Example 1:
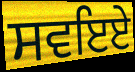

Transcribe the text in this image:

ਸਵਇਏ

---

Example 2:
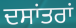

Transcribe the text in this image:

ਦਸਾਂਤਰਾਂ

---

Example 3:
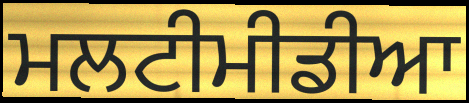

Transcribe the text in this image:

ਮਲਟੀਮੀਡੀਆ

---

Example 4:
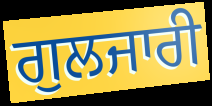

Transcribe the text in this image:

ਗੁਲਜਾਰੀ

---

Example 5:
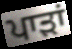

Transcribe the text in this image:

ਪਾੜਾਂ